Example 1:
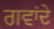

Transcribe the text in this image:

ਗਵਾਂਦੇ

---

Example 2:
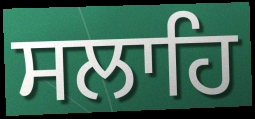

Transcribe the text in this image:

ਸਲਾਹਿ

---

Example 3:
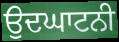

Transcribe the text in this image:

ਉਦਘਾਟਨੀ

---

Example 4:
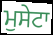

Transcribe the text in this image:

ਮੁਸੇਟਾ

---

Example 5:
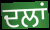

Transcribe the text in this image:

ਦਲਾਂ